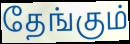
தேங்கும்